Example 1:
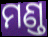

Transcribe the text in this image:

ମଣ୍ଡ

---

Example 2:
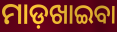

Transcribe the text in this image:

ମାଡ଼ଖାଇବା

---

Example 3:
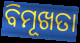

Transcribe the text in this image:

ବିମୂଖତା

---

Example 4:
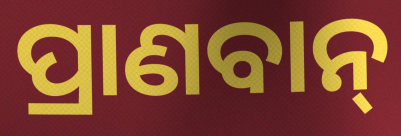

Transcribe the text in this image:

ପ୍ରାଣବାନ୍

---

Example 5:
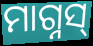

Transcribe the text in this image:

ମାଗ୍ନସ୍